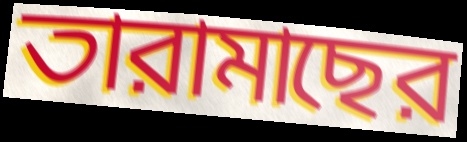
তারামাছের